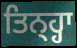
ਤਿਨ੍ਹ੍ਹਾ